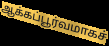
ஆக்கப்பூர்வமாகச்